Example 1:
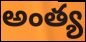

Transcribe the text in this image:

అంత్య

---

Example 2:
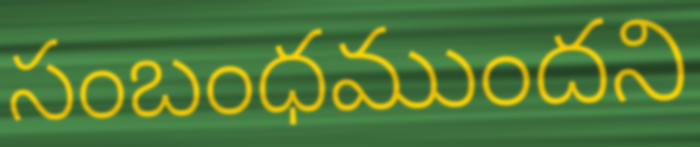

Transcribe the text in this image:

సంబంధముందని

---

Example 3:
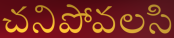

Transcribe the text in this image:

చనిపోవలసి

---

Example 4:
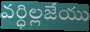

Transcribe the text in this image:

వర్ధిల్లజేయు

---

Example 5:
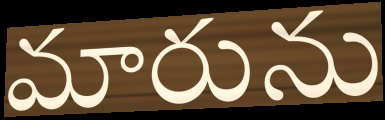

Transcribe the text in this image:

మారును